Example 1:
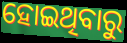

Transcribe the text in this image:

ହୋଇଥିବାରୁ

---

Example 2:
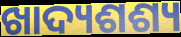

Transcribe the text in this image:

ଖାଦ୍ୟଶଶ୍ୟ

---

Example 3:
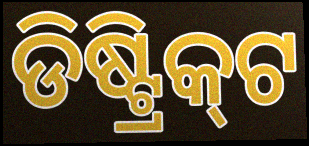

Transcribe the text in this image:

ଡିଷ୍ଟ୍ରିକ୍‌ଟ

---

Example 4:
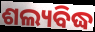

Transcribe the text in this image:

ଶଲ୍ୟବିଦ୍ଧ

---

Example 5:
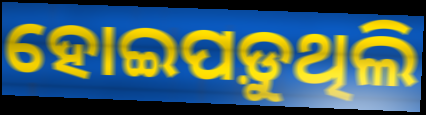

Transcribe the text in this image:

ହୋଇପଡ଼ୁଥିଲି